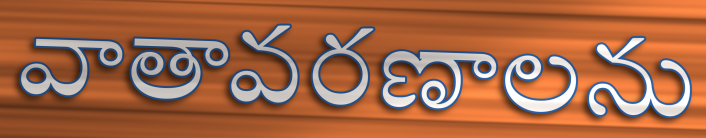
వాతావరణాలను